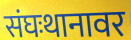
संघःथानावर